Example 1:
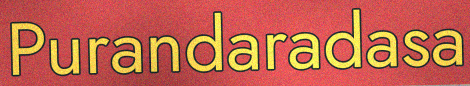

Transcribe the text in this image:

Purandaradasa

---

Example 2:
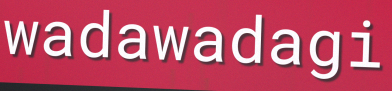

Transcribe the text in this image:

wadawadagi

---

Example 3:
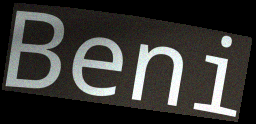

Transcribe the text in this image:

Beni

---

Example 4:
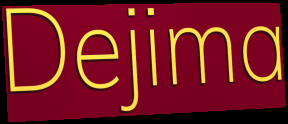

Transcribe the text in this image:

Dejima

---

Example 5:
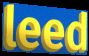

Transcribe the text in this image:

leed